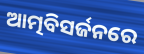
ଆତ୍ମବିସର୍ଜନରେ